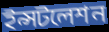
ইন্সটলেশন